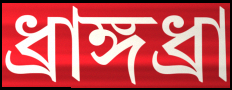
ধ্রাঙ্গধ্রা